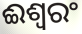
ଈଶ୍ଵରଂ